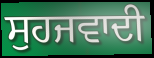
ਸੁਹਜਵਾਦੀ